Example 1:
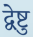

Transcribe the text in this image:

द्वेष्टु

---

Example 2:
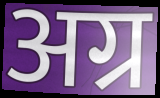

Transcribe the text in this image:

अग्र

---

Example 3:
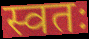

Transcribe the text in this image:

स्वतः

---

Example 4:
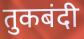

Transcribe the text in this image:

तुकबंदी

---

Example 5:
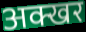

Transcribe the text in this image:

अक्खर